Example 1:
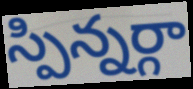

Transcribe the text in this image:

స్పిన్నర్గా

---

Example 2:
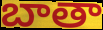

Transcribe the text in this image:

బాతా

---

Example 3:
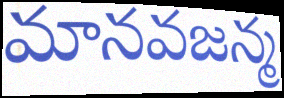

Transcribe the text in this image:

మానవజన్మ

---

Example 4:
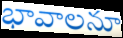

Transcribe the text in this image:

భావాలనూ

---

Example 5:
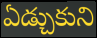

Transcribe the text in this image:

ఏడ్చుకుని